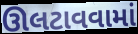
ઊલટાવવામાં